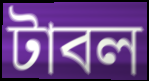
টাবল